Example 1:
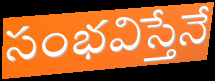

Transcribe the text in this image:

సంభవిస్తేనే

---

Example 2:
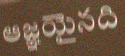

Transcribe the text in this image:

ఆజ్ఞయైనది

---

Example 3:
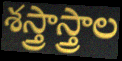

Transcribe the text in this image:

శస్త్రాస్త్రాల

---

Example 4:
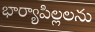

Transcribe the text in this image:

భార్యాపిల్లలను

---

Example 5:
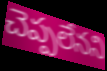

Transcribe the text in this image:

చెప్పలేనని